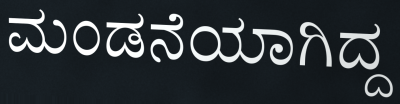
ಮಂಡನೆಯಾಗಿದ್ದ